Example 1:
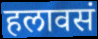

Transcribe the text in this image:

हलावसं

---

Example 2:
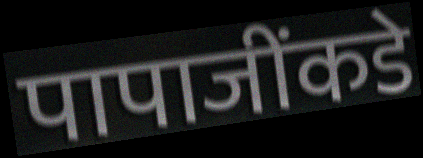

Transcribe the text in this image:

पापाजींकडे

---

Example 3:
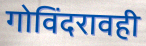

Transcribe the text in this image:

गोविंदरावही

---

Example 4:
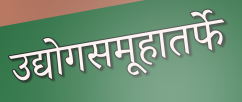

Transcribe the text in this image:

उद्योगसमूहातर्फे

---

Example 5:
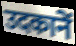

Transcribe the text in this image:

उदकानें